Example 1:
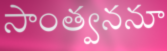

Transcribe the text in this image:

సాంత్వననూ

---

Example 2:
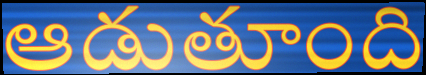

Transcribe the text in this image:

ఆడుతూంది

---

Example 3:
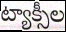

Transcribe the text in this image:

ట్యాక్సీల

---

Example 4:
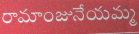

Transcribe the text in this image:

రామాంజునేయమ్మ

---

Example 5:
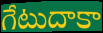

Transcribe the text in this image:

గేటుదాకా